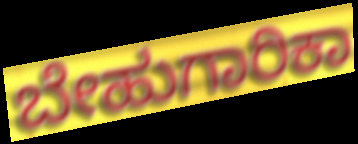
ಬೇಹುಗಾರಿಕಾ